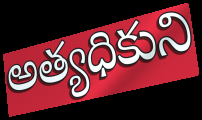
అత్యధికుని